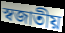
স্বজাতীয়